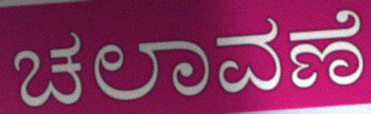
ಚಲಾವಣೆ